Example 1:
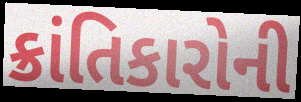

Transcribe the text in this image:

ક્રાંતિકારોની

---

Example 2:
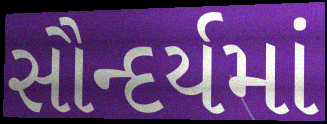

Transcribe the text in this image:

સૌન્દર્યમાં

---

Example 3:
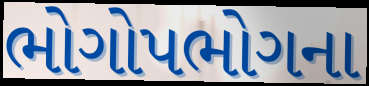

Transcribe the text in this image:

ભોગોપભોગના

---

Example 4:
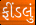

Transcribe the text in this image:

ફીંડલું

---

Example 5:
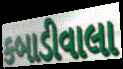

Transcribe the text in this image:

કબાડીવાલા